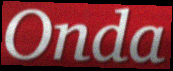
Onda